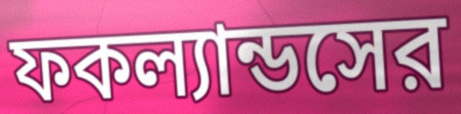
ফকল্যান্ডসের